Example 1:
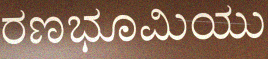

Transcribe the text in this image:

ರಣಭೂಮಿಯು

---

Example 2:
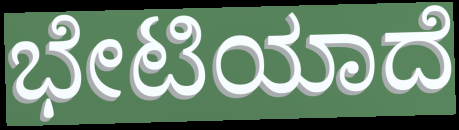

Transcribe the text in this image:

ಭೇಟಿಯಾದೆ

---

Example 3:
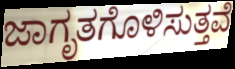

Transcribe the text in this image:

ಜಾಗೃತಗೊಳಿಸುತ್ತವೆ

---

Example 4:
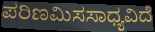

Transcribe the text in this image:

ಪರಿಣಮಿಸಸಾಧ್ಯವಿದೆ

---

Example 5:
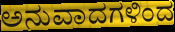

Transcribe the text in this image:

ಅನುವಾದಗಳಿಂದ